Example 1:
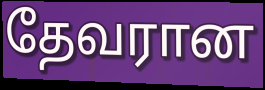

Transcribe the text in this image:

தேவரான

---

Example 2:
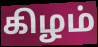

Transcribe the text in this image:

கிழம்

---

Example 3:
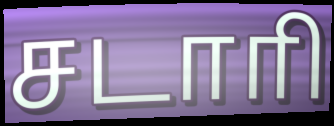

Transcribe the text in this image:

சடாரி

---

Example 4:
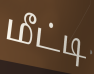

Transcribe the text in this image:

மீட்டி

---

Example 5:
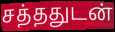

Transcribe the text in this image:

சத்ததுடன்